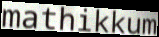
mathikkum